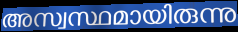
അസ്വസ്ഥമായിരുന്നു